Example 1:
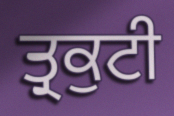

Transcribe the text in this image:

ਤ੍ਰਕੁਟੀ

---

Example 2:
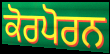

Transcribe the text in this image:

ਕੋਰਪੋਰਨ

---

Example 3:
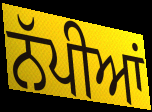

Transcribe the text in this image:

ਨੱਪੀਆਂ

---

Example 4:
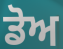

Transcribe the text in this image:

ਡੋਅ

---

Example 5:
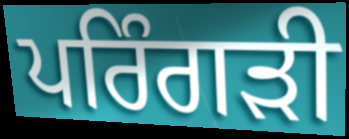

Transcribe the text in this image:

ਪਰਿੰਗੜੀ